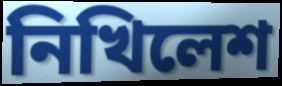
নিখিলেশ